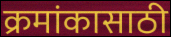
क्रमांकासाठी